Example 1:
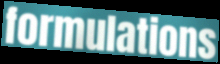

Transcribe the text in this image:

formulations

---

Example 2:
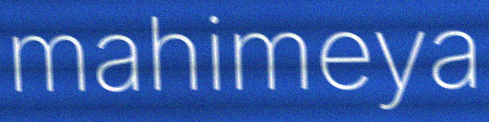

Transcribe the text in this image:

mahimeya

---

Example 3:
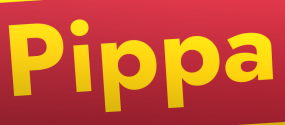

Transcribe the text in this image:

Pippa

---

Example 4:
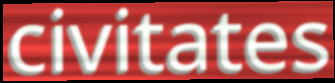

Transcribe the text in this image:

civitates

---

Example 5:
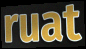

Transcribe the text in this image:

ruat